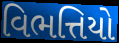
વિભત્તિયો